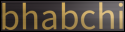
bhabchi